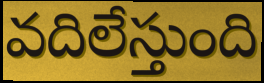
వదిలేస్తుంది